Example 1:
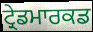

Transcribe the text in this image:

ਟ੍ਰੇਡਮਾਰਕਡ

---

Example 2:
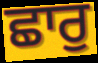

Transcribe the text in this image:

ਛਾਰੁ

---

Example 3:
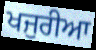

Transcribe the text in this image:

ਖਜੁਰੀਆ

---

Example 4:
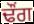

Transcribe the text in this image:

ਢੌਂਗ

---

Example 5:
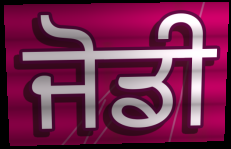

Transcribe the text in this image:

ਜੋਡੀ